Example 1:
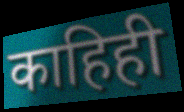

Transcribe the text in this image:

काहिही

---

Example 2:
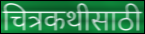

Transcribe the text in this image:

चित्रकथीसाठी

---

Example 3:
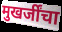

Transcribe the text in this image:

मुखर्जींचा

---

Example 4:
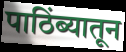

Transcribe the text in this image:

पाठिंब्यातून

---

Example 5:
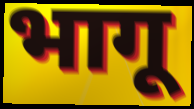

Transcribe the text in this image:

भागू